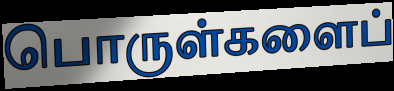
பொருள்களைப்